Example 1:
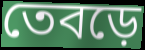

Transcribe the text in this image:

তেবড়ে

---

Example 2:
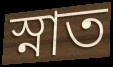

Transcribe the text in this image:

স্নাত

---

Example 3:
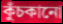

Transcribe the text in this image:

কুঁচকানো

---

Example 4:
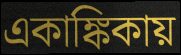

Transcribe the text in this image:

একাঙ্কিকায়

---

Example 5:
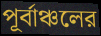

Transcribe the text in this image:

পূর্বাঞ্চলের